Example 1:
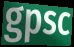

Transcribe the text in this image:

gpsc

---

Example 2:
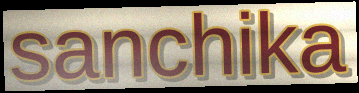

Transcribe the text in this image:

sanchika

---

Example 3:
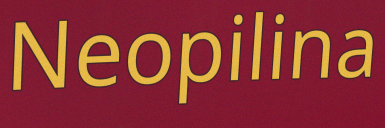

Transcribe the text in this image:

Neopilina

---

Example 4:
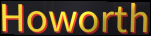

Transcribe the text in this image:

Howorth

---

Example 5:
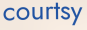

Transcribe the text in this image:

courtsy